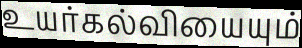
உயர்கல்வியையும்